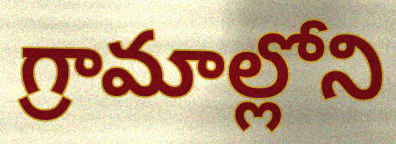
గ్రామాల్లోని